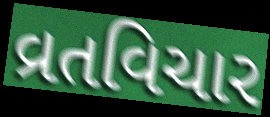
વ્રતવિચાર